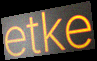
etke